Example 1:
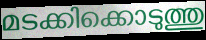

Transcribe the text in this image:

മടക്കിക്കൊടുത്തു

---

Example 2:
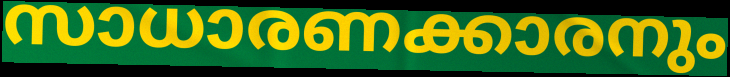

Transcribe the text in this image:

സാധാരണക്കാരനും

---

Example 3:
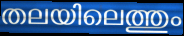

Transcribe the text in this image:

തലയിലെത്തും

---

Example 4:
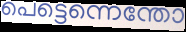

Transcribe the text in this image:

പെട്ടെന്നെന്തോ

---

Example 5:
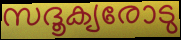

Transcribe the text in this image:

സദൂക്യരോടു